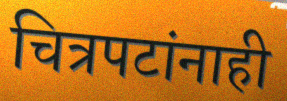
चित्रपटांनाही